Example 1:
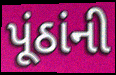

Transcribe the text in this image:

પૂંઠાંની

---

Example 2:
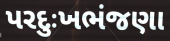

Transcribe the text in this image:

પરદુઃખભંજણા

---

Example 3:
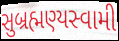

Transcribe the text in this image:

સુબ્રહ્મણ્યસ્વામી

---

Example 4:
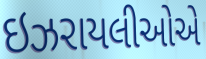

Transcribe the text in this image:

ઇઝરાયલીઓએ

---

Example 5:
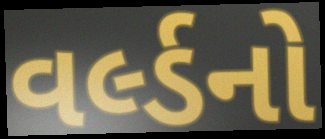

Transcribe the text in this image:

વર્લ્ડનો